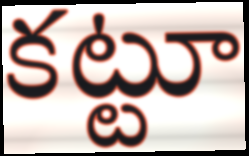
కట్టూ